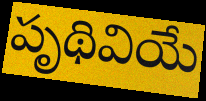
పృథివియే